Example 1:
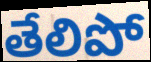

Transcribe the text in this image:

తేలిపో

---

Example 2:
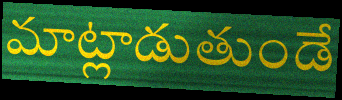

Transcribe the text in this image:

మాట్లాడుతుండే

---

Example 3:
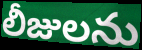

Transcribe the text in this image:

లీజులను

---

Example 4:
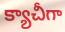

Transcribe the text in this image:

క్యాచీగా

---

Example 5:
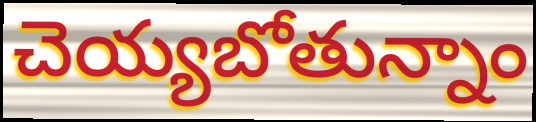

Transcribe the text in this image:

చెయ్యబోతున్నాం